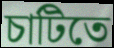
চাটিতে